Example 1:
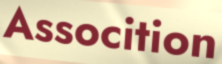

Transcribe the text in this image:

Assocition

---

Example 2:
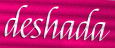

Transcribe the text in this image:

deshada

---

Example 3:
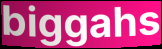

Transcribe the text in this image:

biggahs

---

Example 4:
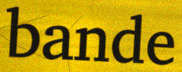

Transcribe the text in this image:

bande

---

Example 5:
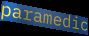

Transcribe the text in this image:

paramedic